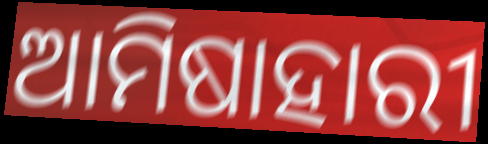
ଆମିଷାହାରୀ